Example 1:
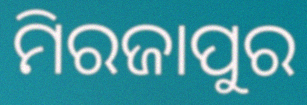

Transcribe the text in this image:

ମିରଜାପୁର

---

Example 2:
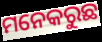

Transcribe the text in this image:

ମନେକରୁଛ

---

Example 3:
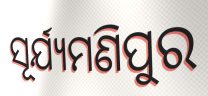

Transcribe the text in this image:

ସୂର୍ଯ୍ୟମଣିପୁର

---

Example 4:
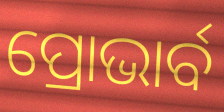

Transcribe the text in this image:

ପ୍ରୋଭାର୍ବ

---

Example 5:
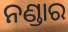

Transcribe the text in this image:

ନଣ୍ଡାର